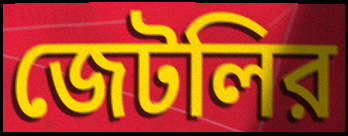
জেটলির